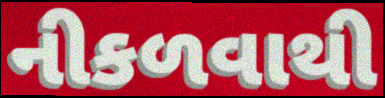
નીકળવાથી